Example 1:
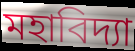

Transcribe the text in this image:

মহাবিদ্যা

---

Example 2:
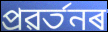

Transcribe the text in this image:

প্ৰৱৰ্তনৰ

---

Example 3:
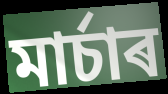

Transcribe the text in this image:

মাৰ্চাৰ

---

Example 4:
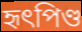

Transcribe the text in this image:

হৃৎপিণ্ড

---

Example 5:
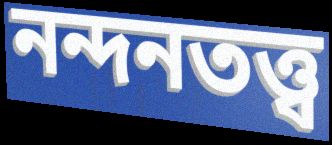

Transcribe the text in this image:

নন্দনতত্ত্ব